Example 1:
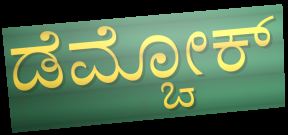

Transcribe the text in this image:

ಡೆಮ್ಚೋಕ್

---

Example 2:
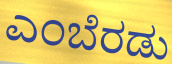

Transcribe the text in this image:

ಎಂಬೆರಡು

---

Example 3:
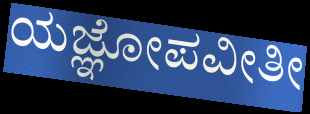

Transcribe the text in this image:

ಯಜ್ಞೋಪವೀತೀ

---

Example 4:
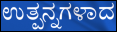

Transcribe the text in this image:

ಉತ್ಪನ್ನಗಳಾದ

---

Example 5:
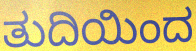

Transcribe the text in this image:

ತುದಿಯಿಂದ